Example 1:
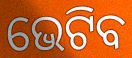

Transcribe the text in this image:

ଭେଟିବ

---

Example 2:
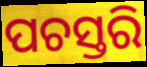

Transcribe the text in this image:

ପଚସ୍ତରି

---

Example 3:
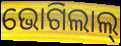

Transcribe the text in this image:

ଭୋଗିଲାଲ୍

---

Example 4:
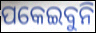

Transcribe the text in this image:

ପକେଇବୁନି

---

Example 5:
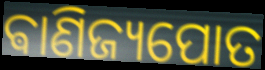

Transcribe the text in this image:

ଵାଣିଜ୍ୟପୋତ